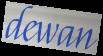
dewan